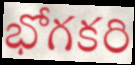
భోగకరి